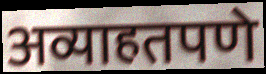
अव्याहतपणे